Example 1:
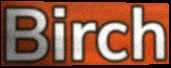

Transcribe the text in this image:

Birch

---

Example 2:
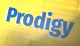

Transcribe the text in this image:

Prodigy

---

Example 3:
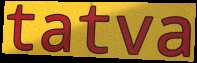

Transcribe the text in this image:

tatva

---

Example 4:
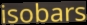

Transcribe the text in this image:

isobars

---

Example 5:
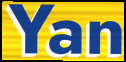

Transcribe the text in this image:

Yan